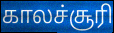
காலச்சூரி